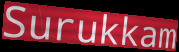
Surukkam